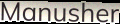
Manusher